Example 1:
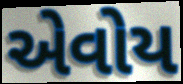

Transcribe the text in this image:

એવોય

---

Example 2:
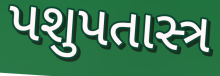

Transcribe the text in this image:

પશુપતાસ્ત્ર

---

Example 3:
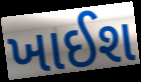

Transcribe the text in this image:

ખાઈશ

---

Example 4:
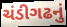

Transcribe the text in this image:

ચંડીગઢનું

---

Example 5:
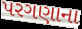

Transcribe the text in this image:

પરગણાના